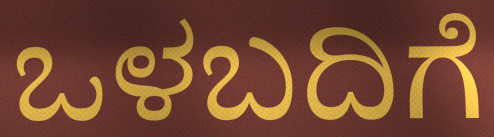
ಒಳಬದಿಗೆ